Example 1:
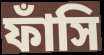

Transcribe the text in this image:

ফাঁসি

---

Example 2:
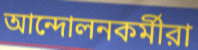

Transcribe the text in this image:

আন্দোলনকর্মীরা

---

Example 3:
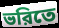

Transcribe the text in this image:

ভরিতে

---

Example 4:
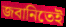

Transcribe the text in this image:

জবানিতেই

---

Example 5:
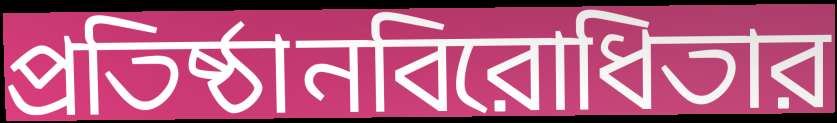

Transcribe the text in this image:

প্রতিষ্ঠানবিরোধিতার